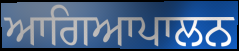
ਆਗਿਆਪਾਲਨ